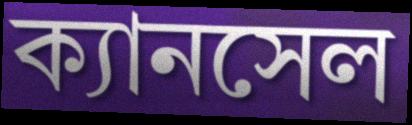
ক্যানসেল